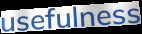
usefulness